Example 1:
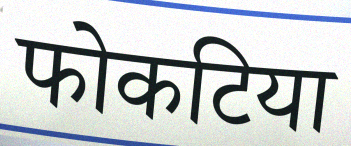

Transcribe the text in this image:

फोकटिया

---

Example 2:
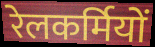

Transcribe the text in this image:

रेलकर्मियों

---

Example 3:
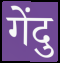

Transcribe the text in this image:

गेंदु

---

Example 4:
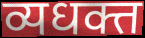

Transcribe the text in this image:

व्यधक्त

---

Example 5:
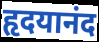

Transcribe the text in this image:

हृदयानंद